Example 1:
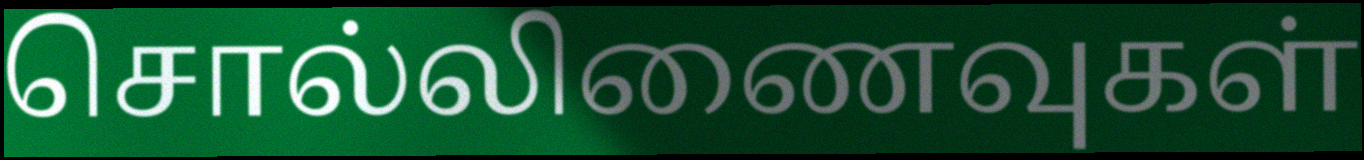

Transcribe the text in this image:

சொல்லிணைவுகள்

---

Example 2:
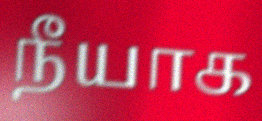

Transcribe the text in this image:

நீயாக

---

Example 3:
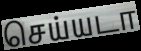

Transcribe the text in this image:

செய்யடா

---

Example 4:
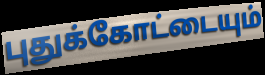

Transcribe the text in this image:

புதுக்கோட்டையும்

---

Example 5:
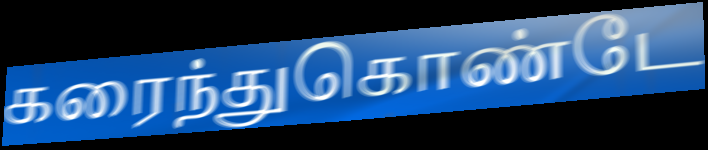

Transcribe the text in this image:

கரைந்துகொண்டே